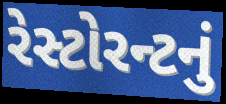
રેસ્ટોરન્ટનું